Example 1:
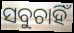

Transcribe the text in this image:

ସବୁଚାହିଁ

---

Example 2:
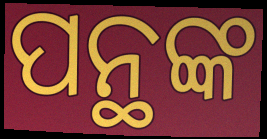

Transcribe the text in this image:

ପନ୍ଥଙ୍କ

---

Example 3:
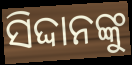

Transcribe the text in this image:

ସିଦ୍ଦାନଙ୍କୁ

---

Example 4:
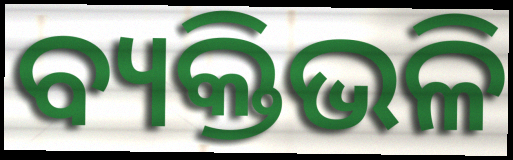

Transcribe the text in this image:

ବ୍ୟକ୍ତିଭଳି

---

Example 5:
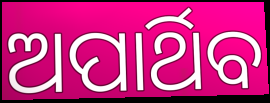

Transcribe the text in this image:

ଅପାର୍ଥିବ